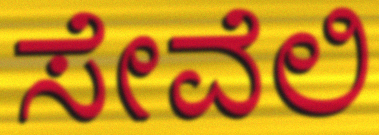
ಸೇವೆಲಿ